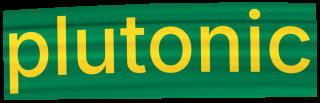
plutonic